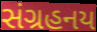
સંગ્રહનય